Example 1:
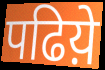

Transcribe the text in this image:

पढिय़े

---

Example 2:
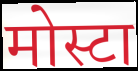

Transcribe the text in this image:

मोस्टा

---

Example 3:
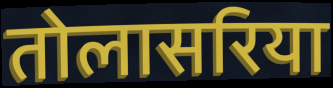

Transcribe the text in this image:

तोलासरिया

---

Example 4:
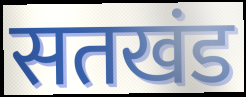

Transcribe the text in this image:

सतखंड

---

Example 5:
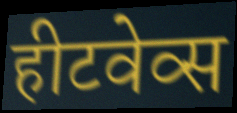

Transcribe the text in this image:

हीटवेव्स